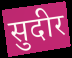
सुदीर